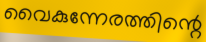
വൈകുന്നേരത്തിന്റെ